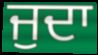
ਜੁਦਾ